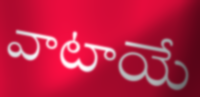
వాటాయే